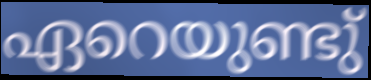
ഏറെയുണ്ടു്